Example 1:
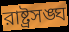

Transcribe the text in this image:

রাষ্ট্রসঙ্ঘ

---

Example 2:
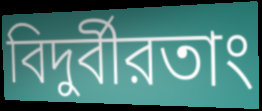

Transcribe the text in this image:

বিদুর্বীরতাং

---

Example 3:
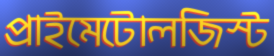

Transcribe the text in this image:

প্রাইমেটোলজিস্ট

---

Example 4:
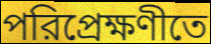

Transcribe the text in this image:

পরিপ্রেক্ষণীতে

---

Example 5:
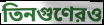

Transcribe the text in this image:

তিনগুণেরও